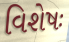
વિશેષઃ